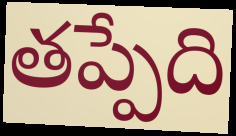
తప్పేది